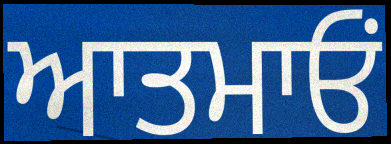
ਆਤਮਾਓਂ